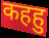
कहहु